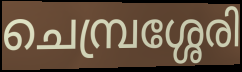
ചെമ്പ്രശ്ശേരി